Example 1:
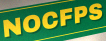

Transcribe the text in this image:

NOCFPS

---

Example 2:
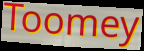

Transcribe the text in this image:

Toomey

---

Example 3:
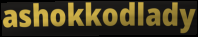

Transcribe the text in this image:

ashokkodlady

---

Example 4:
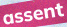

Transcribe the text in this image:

assent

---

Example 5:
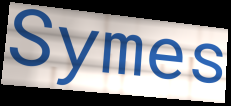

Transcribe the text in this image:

Symes